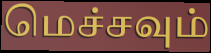
மெச்சவும்